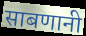
साबणानी